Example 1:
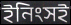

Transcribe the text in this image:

ইনিংসই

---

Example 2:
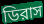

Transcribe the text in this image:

ডিরাস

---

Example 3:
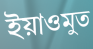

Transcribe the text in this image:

ইয়াওমুত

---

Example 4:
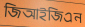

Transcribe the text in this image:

জিআইজিএন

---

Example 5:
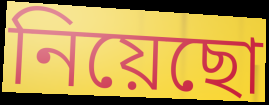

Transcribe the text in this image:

নিয়েছো